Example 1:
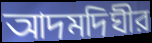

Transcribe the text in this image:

আদমদিঘীর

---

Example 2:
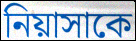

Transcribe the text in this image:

নিয়াসাকে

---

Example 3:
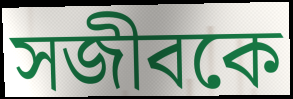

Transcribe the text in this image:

সজীবকে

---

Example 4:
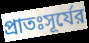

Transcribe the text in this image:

প্রাতঃসূর্যের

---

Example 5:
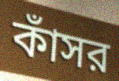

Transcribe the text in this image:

কাঁসর